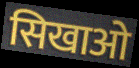
सिखाओ